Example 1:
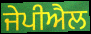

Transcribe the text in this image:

ਜੇਪੀਐਲ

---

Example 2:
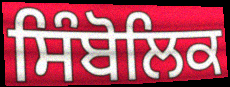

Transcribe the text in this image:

ਸਿੰਬੋਲਿਕ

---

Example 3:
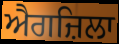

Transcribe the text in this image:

ਐਗਜ਼ਿਲਾ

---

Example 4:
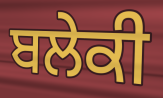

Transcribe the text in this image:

ਬਲੇਕੀ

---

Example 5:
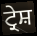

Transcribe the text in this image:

ਟ੍ਰੇਸ਼